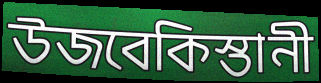
উজবেকিস্তানী